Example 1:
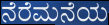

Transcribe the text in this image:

ನೆರೆಮನೆಯ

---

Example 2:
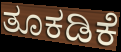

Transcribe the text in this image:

ತೂಕಡಿಕೆ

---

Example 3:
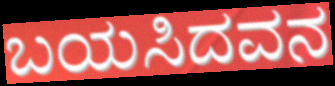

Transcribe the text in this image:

ಬಯಸಿದವನ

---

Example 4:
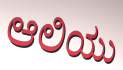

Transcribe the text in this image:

ಆಲಿಯು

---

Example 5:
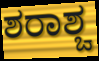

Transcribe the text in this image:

ಶರಾಶ್ಚ